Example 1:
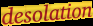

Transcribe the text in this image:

desolation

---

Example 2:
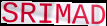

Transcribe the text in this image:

SRIMAD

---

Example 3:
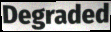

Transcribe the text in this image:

Degraded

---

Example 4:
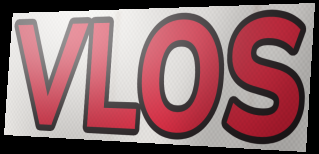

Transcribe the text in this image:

VLOS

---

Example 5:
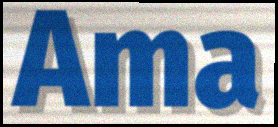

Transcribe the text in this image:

Ama